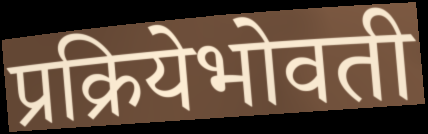
प्रक्रियेभोवती